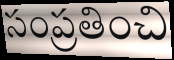
సంప్రతించి